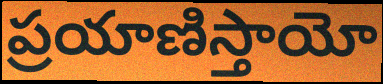
ప్రయాణిస్తాయో